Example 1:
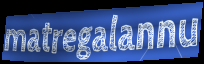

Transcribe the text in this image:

matregalannu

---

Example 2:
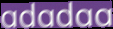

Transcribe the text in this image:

adadaa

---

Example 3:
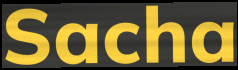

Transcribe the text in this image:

Sacha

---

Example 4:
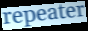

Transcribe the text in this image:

repeater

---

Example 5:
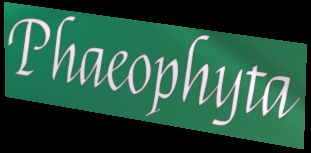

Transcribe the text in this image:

Phaeophyta